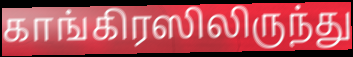
காங்கிரஸிலிருந்து